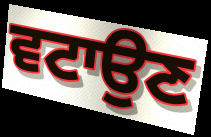
ਵਟਾਉਣ